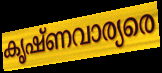
കൃഷ്ണവാര്യരെ